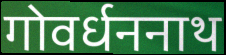
गोवर्धननाथ